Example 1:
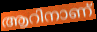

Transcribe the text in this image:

ആറിനാണ്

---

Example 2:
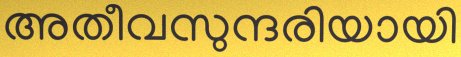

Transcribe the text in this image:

അതീവസുന്ദരിയായി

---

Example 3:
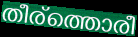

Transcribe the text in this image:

തീര്ത്തൊരീ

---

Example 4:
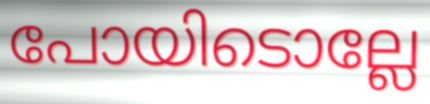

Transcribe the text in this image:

പോയിടൊല്ലേ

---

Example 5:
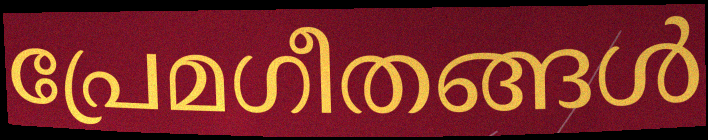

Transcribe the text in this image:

പ്രേമഗീതങ്ങൾ